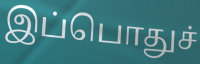
இப்பொதுச்